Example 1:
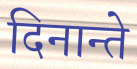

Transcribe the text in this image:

दिनान्ते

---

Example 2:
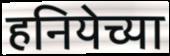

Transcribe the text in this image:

हनियेच्या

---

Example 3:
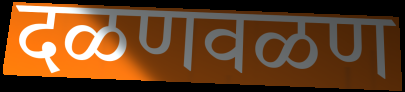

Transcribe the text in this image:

दळणवळण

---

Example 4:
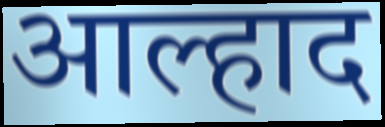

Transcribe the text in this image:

आल्हाद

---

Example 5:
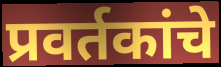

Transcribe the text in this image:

प्रवर्तकांचे